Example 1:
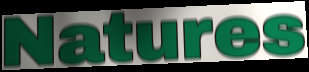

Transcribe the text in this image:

Natures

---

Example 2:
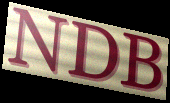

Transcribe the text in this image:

NDB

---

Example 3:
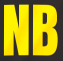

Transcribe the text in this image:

NB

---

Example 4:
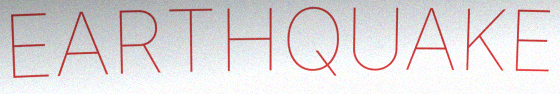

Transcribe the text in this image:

EARTHQUAKE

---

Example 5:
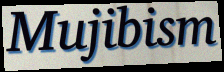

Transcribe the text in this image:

Mujibism